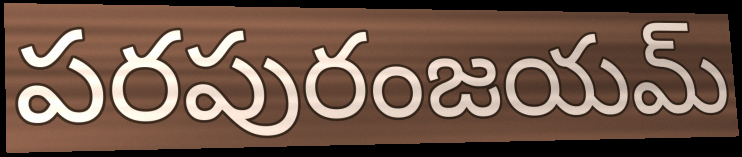
పరపురంజయమ్